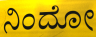
ನಿಂದೋ